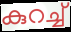
കുറച്ച്